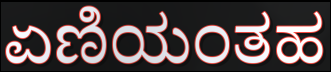
ಏಣಿಯಂತಹ